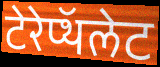
टेरेप्थॅलेट